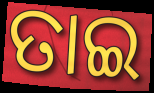
ତାଇ